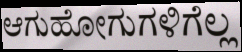
ಆಗುಹೋಗುಗಳಿಗೆಲ್ಲ